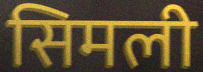
सिमली